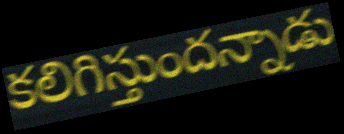
కలిగిస్తుందన్నాడు